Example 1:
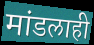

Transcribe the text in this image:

मांडलाही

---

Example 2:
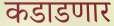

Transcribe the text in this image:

कडाडणार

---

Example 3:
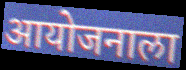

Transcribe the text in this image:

आयोजनाला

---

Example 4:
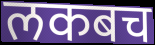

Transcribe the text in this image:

लकबच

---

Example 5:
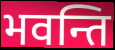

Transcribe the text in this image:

भवन्ति